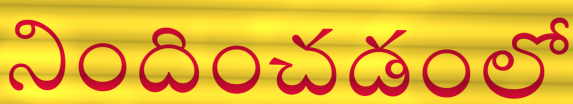
నిందించడంలో